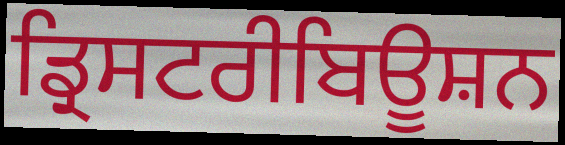
ਡ੍ਰਿਸਟਰੀਬਿਊਸ਼ਨ